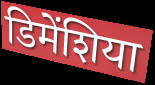
डिमेंशिया